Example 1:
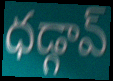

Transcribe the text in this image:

ధడ్గావ్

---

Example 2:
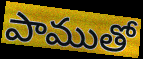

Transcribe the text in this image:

పాముతో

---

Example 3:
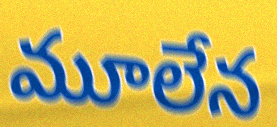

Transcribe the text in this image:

మూలేన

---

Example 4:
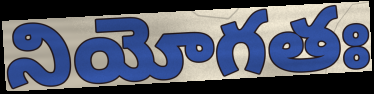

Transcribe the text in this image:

నియోగతః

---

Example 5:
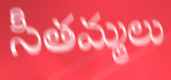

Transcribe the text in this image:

సీతమ్మలు